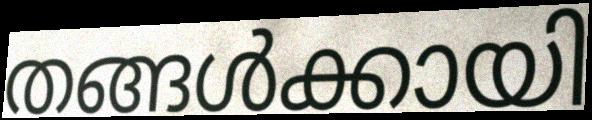
തങ്ങൾക്കായി